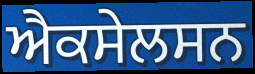
ਐਕਸੇਲਸਨ